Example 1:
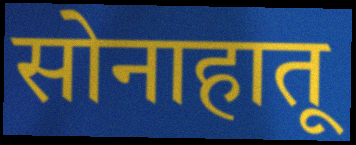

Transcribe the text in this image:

सोनाहातू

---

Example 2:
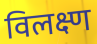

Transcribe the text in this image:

विलक्ष्ण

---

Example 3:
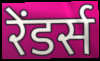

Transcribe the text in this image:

रेंडर्स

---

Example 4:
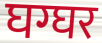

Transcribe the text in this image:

घग्घर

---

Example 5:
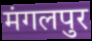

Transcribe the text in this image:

मंगलपुर